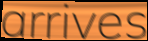
arrives